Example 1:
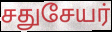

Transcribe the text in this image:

சதுசேயர்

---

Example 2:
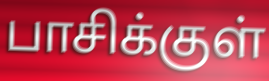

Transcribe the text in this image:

பாசிக்குள்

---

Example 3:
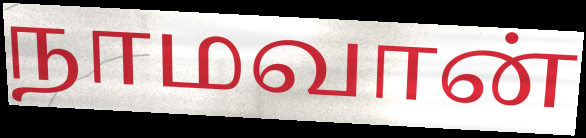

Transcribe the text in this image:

நாமவான்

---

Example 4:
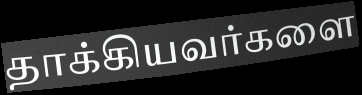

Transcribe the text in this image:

தாக்கியவர்களை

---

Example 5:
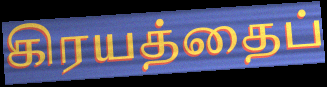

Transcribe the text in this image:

கிரயத்தைப்